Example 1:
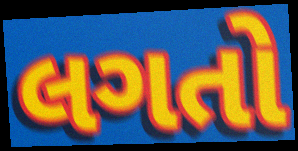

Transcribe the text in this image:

લગતો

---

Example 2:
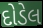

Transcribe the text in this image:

દોડેલ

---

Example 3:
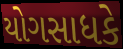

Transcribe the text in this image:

યોગસાધકે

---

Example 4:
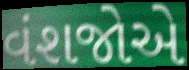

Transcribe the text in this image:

વંશજોએ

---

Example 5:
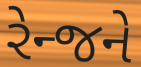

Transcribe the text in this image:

રેન્જને